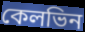
কেলভিন